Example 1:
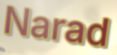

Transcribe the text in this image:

Narad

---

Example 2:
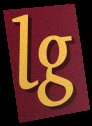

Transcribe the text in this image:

lg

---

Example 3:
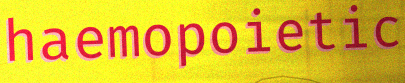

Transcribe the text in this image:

haemopoietic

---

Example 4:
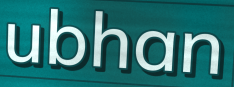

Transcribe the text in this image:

ubhan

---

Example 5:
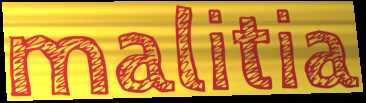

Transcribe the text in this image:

malitia